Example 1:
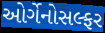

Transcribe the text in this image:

ઓર્ગેનોસલ્ફર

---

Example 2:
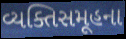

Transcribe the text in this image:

વ્યક્તિસમૂહના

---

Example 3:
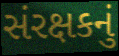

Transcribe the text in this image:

સંરક્ષકનું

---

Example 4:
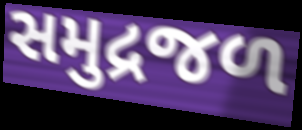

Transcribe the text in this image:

સમુદ્રજળ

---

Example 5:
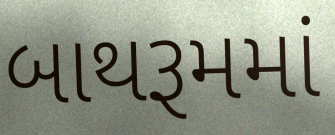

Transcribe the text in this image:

બાથરૂમમાં